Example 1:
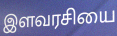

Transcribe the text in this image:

இளவரசியை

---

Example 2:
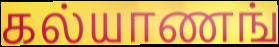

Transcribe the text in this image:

கல்யாணங்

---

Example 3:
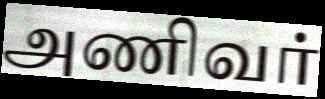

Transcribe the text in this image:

அணிவர்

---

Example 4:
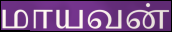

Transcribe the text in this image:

மாயவன்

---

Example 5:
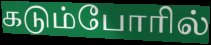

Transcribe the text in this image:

கடும்போரில்